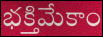
భక్తిమేకాం